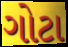
ગોટા